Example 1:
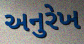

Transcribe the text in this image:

અનુરેખ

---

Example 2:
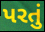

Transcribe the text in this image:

પરતું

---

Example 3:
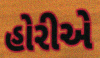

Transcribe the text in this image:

હોરીએ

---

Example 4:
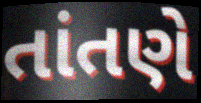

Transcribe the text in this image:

તાંતણે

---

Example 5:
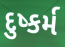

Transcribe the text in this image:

દુષ્કર્મ